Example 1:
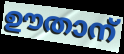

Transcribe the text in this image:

ഊതാന്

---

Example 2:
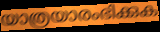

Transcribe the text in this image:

യാത്രയാരംഭിക്കുക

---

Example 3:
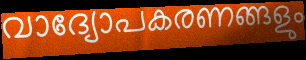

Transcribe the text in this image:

വാദ്യോപകരണങ്ങളും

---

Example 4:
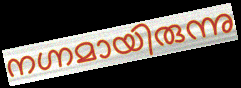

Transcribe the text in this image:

നഗ്നമായിരുന്നു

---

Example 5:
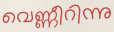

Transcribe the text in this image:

വെണ്ണീറിന്നു